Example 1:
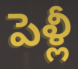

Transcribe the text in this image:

పెళ్లీ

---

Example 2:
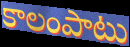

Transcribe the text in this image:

కాలంపాటు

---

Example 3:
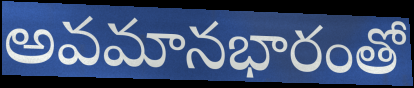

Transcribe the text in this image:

అవమానభారంతో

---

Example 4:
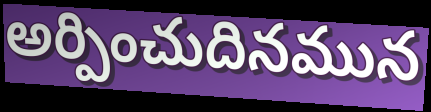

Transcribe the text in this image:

అర్పించుదినమున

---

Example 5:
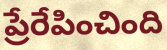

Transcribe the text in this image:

ప్రేరేపించింది